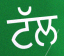
ਟੱਲ